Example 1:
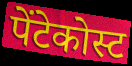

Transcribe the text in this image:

पेंटेकोस्ट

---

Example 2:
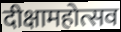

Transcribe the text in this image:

दीक्षामहोत्सव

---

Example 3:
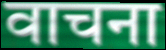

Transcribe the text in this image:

वाचना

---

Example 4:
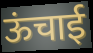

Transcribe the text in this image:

ऊंचाई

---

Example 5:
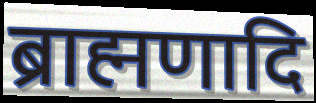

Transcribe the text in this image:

ब्राह्मणादि